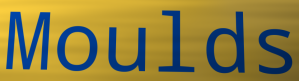
Moulds